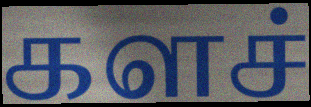
களச்